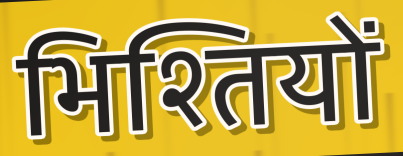
भिश्तियों